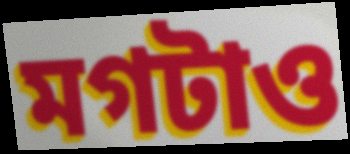
মগটাও